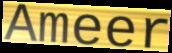
Ameer